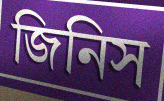
জিনিস